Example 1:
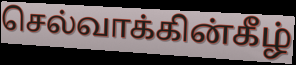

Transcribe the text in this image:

செல்வாக்கின்கீழ்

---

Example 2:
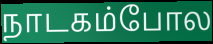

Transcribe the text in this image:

நாடகம்போல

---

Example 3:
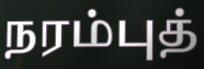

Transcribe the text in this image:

நரம்புத்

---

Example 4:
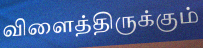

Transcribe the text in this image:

விளைத்திருக்கும்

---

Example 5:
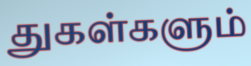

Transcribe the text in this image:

துகள்களும்